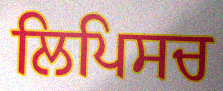
ਲਿਪਿਸਚ